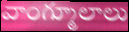
వాంగ్మూలాలు